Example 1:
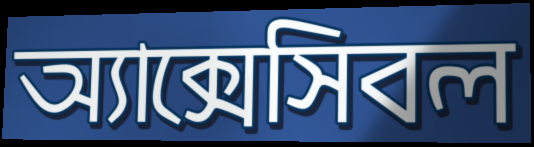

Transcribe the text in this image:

অ্যাক্সেসিবল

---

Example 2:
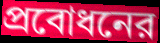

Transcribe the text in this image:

প্রবোধনের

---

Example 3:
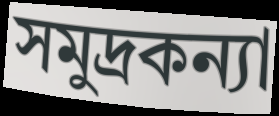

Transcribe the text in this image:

সমুদ্রকন্যা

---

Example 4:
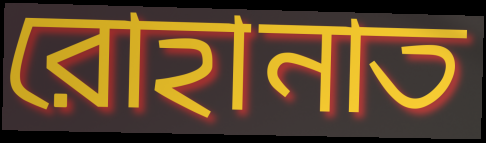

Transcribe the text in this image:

রোহানাত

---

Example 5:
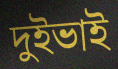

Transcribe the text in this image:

দুইভাই